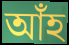
আঁহ